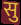
सु